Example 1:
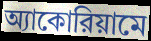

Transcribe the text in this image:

অ্যাকোরিয়ামে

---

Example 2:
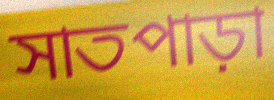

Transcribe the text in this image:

সাতপাড়া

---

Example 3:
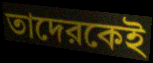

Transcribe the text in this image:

তাদেরকেই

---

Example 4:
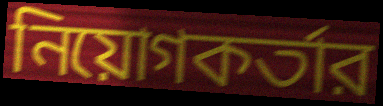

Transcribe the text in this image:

নিয়োগকর্তার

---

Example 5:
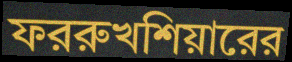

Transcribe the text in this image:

ফররুখশিয়ারের